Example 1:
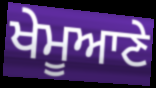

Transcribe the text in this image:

ਖੇਮੂਆਣੇ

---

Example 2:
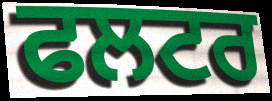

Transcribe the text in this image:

ਫਲਟਰ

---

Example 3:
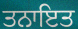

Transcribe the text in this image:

ਤਨਾਇਤ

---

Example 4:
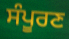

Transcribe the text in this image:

ਸੰਪੂਰਣ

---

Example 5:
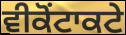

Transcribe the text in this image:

ਵੀਕੋਂਟਾਕਟੇ